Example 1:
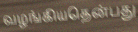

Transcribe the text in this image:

வழங்கியதென்பது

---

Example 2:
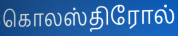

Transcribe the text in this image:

கொலஸ்திரோல்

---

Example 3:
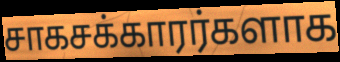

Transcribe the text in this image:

சாகசக்காரர்களாக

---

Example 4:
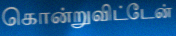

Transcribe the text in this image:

கொன்றுவிட்டேன்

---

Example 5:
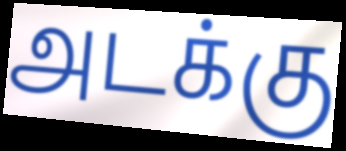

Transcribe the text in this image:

அடக்கு